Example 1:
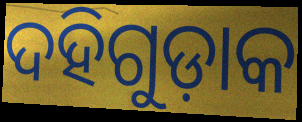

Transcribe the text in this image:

ଦହିଗୁଡ଼ାକ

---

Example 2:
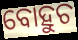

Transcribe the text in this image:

ବୋହୁଚ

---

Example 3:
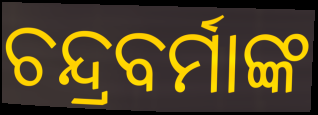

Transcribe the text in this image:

ଚନ୍ଦ୍ରବର୍ମାଙ୍କ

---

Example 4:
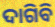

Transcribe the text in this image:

ଦାଗିବି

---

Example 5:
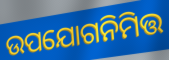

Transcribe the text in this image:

ଉପଯୋଗନିମିତ୍ତ